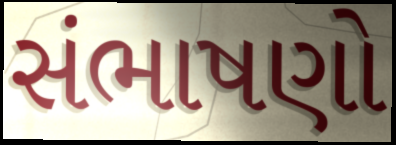
સંભાષણો